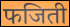
फजिती